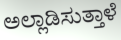
ಅಲ್ಲಾಡಿಸುತ್ತಾಳೆ